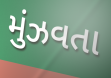
મુંઝવતા